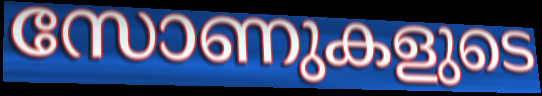
സോണുകളുടെ